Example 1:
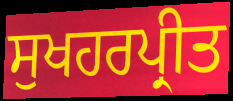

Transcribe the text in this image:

ਸੁਖਹਰਪ੍ਰੀਤ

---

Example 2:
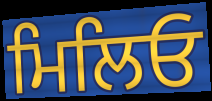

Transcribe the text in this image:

ਮਿਲਿਓ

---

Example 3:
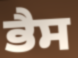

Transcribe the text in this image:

ਭੈਸ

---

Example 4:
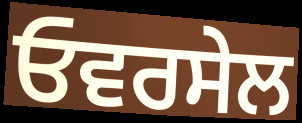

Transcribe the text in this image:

ਓਵਰਸੇਲ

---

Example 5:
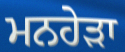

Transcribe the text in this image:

ਮਨਹੇੜਾ